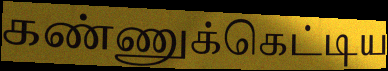
கண்ணுக்கெட்டிய